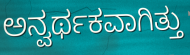
ಅನ್ವರ್ಥಕವಾಗಿತ್ತು